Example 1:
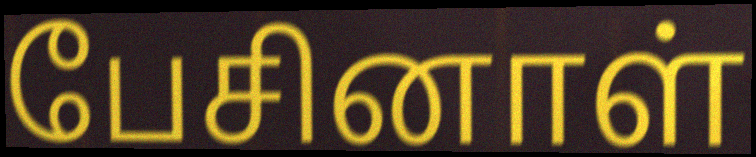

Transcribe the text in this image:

பேசினாள்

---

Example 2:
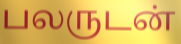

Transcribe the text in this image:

பலருடன்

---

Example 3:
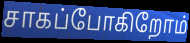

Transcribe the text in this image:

சாகப்போகிறோம்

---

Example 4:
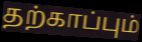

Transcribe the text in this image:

தற்காப்பும்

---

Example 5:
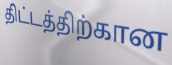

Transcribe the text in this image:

திட்டத்திற்கான